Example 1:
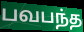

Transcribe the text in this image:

பவபந்த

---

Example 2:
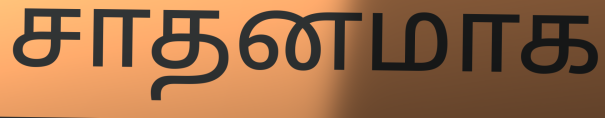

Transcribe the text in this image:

சாதனமாக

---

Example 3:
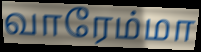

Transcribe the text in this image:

வாரேம்மா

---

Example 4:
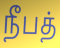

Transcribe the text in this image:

நீபத்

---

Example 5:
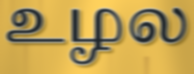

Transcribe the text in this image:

உழல